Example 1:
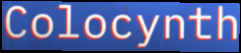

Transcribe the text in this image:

Colocynth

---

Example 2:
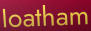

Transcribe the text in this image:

Ioatham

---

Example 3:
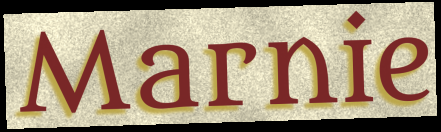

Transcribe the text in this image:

Marnie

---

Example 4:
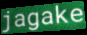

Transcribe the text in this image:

jagake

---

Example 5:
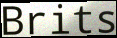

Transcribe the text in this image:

Brits